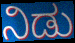
ನಿಡು